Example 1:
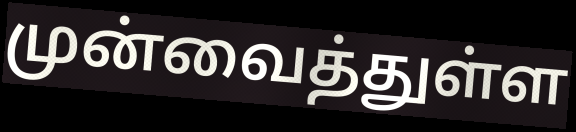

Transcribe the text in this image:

முன்வைத்துள்ள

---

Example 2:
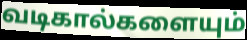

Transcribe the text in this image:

வடிகால்களையும்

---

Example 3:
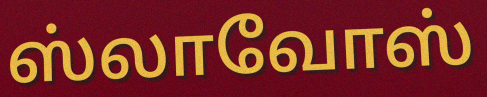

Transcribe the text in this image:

ஸ்லாவோஸ்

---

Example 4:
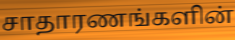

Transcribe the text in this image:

சாதாரணங்களின்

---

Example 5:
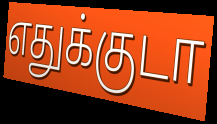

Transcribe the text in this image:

எதுக்குடா